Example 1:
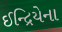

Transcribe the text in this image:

ઈન્દ્રિયેના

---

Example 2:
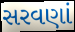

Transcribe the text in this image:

સરવણાં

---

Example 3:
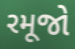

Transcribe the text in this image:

રમૂજો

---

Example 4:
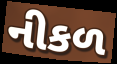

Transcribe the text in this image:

નીકળ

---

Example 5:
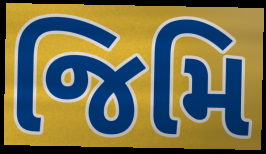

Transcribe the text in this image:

જિમિ